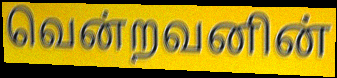
வென்றவனின்